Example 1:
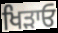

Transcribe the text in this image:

ਖਿੜਾਓ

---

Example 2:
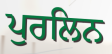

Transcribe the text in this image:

ਪੁਰਲਿਨ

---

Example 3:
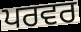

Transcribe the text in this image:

ਪਰਵਰ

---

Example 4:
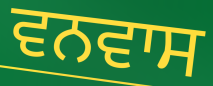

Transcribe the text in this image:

ਵਨਵਾਸ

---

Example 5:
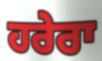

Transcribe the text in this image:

ਹਰੇਰਾ